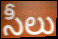
సీలు